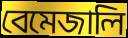
বেমেজালি